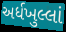
અર્ધખુલ્લાં